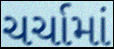
ચર્ચામાં